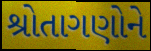
શ્રોતાગણોને